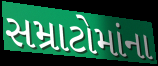
સમ્રાટોમાંના